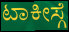
ಟಾಕೀಸ್ಗೆ